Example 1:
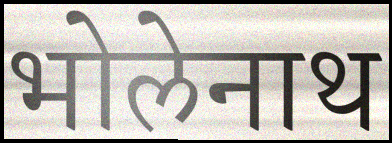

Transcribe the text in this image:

भोलेनाथ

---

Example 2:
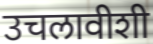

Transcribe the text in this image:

उचलावीशी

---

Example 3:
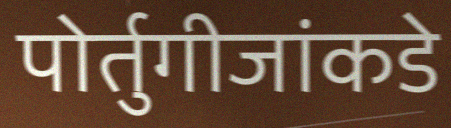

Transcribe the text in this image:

पोर्तुगीजांकडे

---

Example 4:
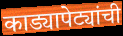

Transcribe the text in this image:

काड्यापेट्यांची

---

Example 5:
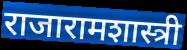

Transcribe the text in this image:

राजारामशास्त्री